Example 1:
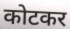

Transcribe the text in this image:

कोटकर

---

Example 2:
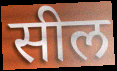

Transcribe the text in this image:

सील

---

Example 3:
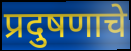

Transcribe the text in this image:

प्रदुषणाचे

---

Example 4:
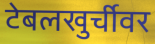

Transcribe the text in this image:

टेबलखुर्चीवर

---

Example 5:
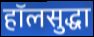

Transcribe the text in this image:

हॉलसुद्धा